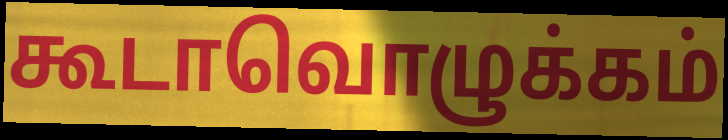
கூடாவொழுக்கம்